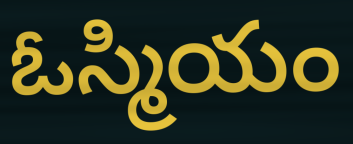
ఓస్మియం